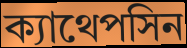
ক্যাথেপসিন